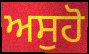
ਅਸੁਹੋ